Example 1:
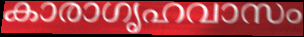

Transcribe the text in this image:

കാരാഗൃഹവാസം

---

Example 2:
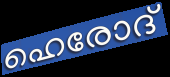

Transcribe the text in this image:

ഹെരോദ്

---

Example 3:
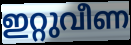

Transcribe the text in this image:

ഇറ്റുവീണ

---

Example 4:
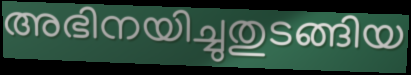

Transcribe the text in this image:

അഭിനയിച്ചുതുടങ്ങിയ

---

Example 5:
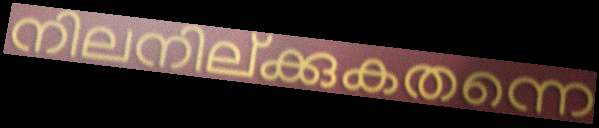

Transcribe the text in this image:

നിലനില്ക്കുകതന്നെ